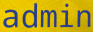
admin